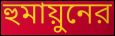
হুমায়ুনের